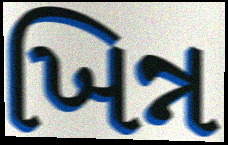
ખિન્ન